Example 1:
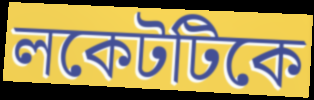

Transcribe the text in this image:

লকেটটিকে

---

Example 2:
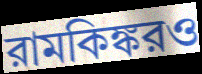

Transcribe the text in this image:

রামকিঙ্করও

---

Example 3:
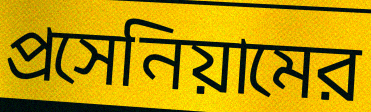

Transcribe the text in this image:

প্রসেনিয়ামের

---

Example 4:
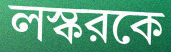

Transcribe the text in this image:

লস্করকে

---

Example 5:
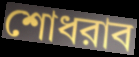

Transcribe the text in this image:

শোধরাব